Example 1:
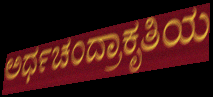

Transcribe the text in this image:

ಅರ್ಧಚಂದ್ರಾಕೃತಿಯ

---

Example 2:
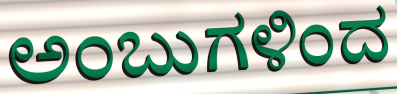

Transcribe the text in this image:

ಅಂಬುಗಳಿಂದ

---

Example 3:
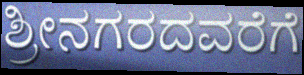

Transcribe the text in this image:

ಶ್ರೀನಗರದವರೆಗೆ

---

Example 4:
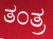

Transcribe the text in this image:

ತಂತ್ರ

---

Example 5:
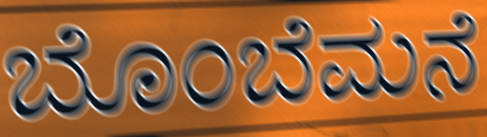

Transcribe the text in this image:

ಬೊಂಬೆಮನೆ